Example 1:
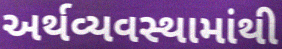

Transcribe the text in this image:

અર્થવ્યવસ્થામાંથી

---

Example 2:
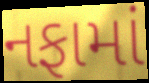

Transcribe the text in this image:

નફામાં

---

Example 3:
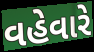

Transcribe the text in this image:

વહેવારે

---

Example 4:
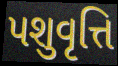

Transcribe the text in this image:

પશુવૃત્તિ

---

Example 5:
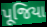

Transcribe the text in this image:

પૂજિયા